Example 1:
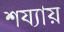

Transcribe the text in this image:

শয্যায়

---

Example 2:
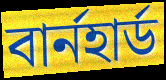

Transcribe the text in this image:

বার্নহার্ড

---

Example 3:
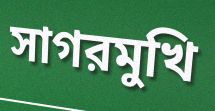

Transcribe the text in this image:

সাগরমুখি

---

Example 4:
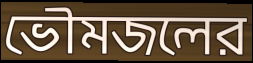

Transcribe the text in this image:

ভৌমজলের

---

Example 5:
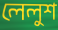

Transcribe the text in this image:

লেলুশ